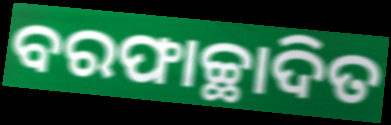
ବରଫାଚ୍ଛାଦିତ